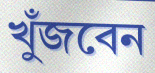
খুঁজবেন